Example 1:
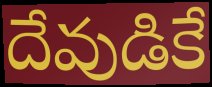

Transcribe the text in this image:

దేవుడికే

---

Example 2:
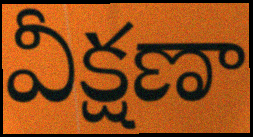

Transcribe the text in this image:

వీక్షణా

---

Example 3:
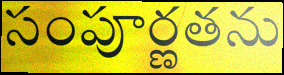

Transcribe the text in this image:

సంపూర్ణతను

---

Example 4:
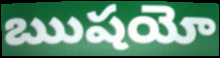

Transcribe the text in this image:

ఋషయో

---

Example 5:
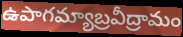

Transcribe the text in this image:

ఉపాగమ్యాబ్రవీద్రామం